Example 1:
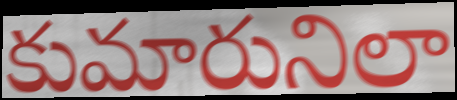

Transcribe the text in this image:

కుమారునిలా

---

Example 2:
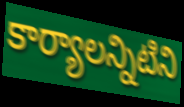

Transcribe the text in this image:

కార్యాలన్నిటిని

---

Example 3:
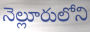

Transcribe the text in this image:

నెల్లూరులోని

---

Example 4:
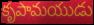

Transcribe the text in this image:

కృపామయుడు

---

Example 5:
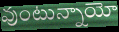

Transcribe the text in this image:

వుంటున్నాయో